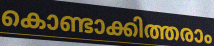
കൊണ്ടാക്കിത്തരാം